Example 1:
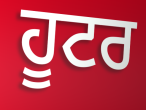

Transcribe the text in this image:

ਹੂਟਰ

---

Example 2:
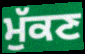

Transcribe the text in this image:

ਮੁੱਕਣ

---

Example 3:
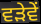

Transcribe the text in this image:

ਵੜੇਵੇਂ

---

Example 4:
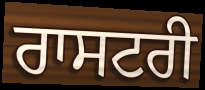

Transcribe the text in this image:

ਰਾਸਟਰੀ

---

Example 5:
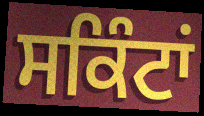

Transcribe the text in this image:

ਸਕਿੰਟਾਂ